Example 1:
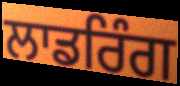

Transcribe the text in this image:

ਲਾਡਰਿੰਗ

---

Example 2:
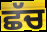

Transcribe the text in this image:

ਛੱਚ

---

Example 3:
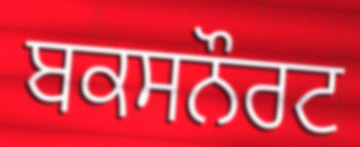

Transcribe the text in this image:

ਬਕਸਨੌਰਟ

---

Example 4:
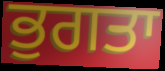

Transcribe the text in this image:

ਭੁਗਤਾ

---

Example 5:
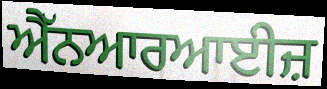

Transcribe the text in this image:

ਐੱਨਆਰਆਈਜ਼